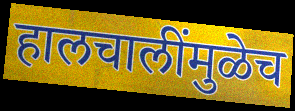
हालचालींमुळेच